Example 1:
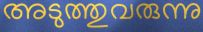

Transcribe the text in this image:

അടുത്തുവരുന്നു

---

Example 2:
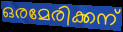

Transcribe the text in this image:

ഒരമേരിക്കന്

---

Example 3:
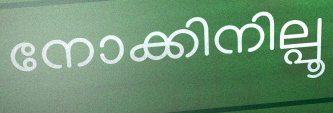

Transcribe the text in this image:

നോക്കിനില്പൂ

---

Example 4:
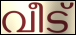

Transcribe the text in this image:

വീട്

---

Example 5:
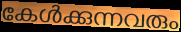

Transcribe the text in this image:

കേൾക്കുന്നവരും